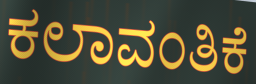
ಕಲಾವಂತಿಕೆ